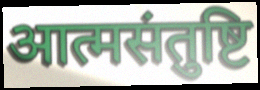
आत्मसंतुष्टि